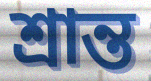
শ্রান্ত